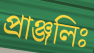
প্রাঞ্জলিঃ